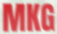
MKG